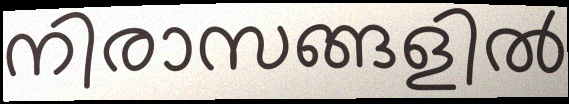
നിരാസങ്ങളിൽ